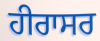
ਹੀਰਾਸਰ